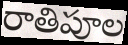
రాతిపూల